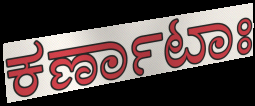
ಕರ್ಣಾಟಾಃ